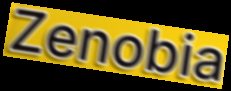
Zenobia